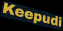
Keepudi